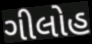
ગીલોહ